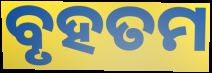
ବୃହତମ